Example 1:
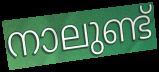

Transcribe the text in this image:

നാലുണ്ട്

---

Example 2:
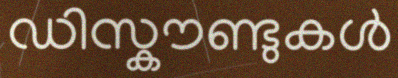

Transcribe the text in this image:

ഡിസ്കൗണ്ടുകൾ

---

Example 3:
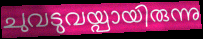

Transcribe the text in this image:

ചുവടുവയ്പായിരുന്നു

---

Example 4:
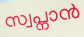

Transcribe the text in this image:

സ്വപ്നാൻ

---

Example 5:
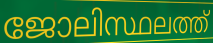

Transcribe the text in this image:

ജോലിസ്ഥലത്ത്